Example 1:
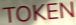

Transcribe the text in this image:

TOKEN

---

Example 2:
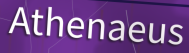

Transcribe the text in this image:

Athenaeus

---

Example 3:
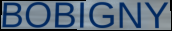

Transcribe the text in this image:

BOBIGNY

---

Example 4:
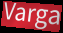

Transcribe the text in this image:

Varga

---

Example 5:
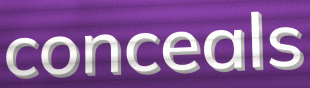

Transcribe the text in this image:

conceals